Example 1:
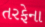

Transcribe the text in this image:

તરફેના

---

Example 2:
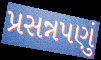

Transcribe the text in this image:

પ્રસન્નપણું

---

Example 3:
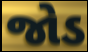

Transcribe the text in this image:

જોડ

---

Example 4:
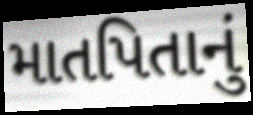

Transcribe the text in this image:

માતપિતાનું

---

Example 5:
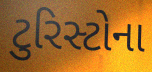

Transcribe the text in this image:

ટુરિસ્ટોના